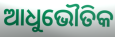
ଆଧୁଭୌତିକ